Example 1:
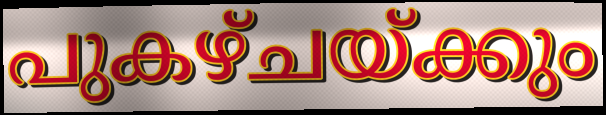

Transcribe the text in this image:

പുകഴ്ചയ്ക്കും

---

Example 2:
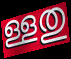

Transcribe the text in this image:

ള്ളതു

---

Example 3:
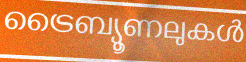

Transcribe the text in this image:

ട്രൈബ്യൂണലുകൾ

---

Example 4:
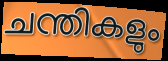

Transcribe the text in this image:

ചന്തികളും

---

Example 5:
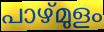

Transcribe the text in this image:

പാഴ്മുളം